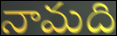
నామది